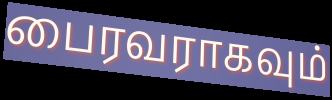
பைரவராகவும்